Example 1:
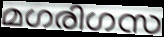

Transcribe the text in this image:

മഗരിഗസ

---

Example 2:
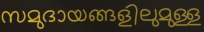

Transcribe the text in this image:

സമുദായങ്ങളിലുമുള്ള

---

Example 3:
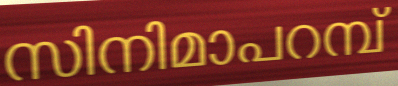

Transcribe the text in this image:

സിനിമാപറമ്പ്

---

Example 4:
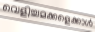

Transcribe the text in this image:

വെളിച്ചമക്കളെക്കാൾ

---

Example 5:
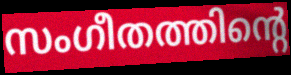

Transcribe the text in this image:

സംഗീതത്തിന്റെ